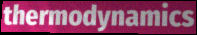
thermodynamics